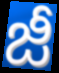
జీ